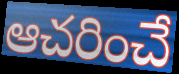
ఆచరించే